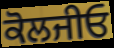
ਕੋਲਜੀਓ